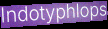
Indotyphlops